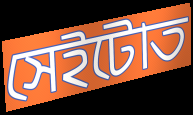
সেইটোত